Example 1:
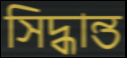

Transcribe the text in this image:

সিদ্ধান্ত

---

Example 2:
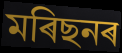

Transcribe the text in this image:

মৰিছনৰ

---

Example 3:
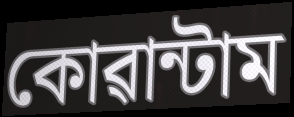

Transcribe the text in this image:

কোৱান্টাম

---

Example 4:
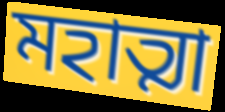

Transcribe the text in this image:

মহাত্মা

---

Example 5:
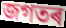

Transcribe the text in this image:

জগতৰ